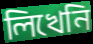
লিখেনি